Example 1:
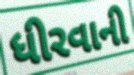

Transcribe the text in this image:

ધીરવાની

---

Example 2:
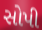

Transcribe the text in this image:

સોપી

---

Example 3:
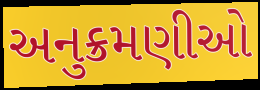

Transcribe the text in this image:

અનુક્રમણીઓ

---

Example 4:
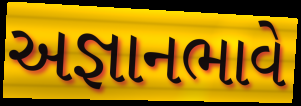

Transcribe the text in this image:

અજ્ઞાનભાવે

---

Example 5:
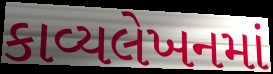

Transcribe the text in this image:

કાવ્યલેખનમાં